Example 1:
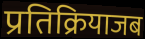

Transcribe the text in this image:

प्रतिक्रियाजब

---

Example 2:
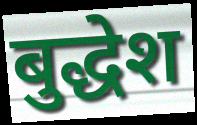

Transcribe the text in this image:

बुद्धेश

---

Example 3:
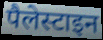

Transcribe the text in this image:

पैलेस्टाइन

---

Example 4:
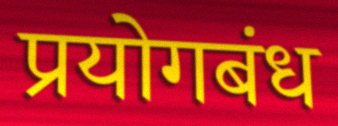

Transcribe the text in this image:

प्रयोगबंध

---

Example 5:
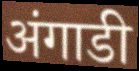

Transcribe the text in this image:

अंगाडी